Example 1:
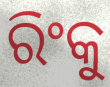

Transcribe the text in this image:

ରିଂକୁ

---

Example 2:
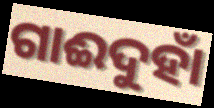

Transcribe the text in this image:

ଗାଈଦୁହାଁ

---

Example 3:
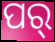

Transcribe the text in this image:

ପର୍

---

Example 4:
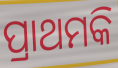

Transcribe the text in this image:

ପ୍ରାଥମକି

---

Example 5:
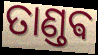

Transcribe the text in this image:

ତାଣ୍ଡଵ